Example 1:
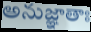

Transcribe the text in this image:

అనుజ్ఞాతాః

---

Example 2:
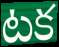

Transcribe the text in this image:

టక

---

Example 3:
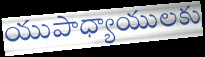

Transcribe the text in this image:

యుపాధ్యాయులకు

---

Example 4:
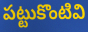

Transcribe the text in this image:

పట్టుకొంటివి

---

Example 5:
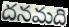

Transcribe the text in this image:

దనమది